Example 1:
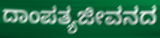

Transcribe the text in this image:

ದಾಂಪತ್ಯಜೀವನದ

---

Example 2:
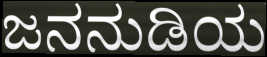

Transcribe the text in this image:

ಜನನುಡಿಯ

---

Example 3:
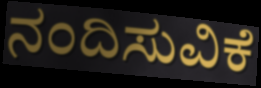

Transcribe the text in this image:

ನಂದಿಸುವಿಕೆ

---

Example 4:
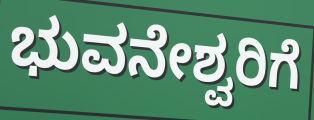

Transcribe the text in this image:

ಭುವನೇಶ್ವರಿಗೆ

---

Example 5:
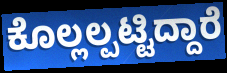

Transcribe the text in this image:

ಕೊಲ್ಲಲ್ಪಟ್ಟಿದ್ದಾರೆ